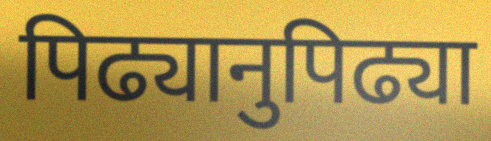
पिढ्यानुपिढ्या